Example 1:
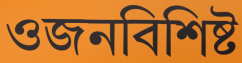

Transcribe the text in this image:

ওজনবিশিষ্ট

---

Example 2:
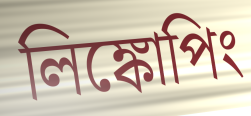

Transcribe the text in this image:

লিঙ্কোপিং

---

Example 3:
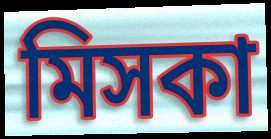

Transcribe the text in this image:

মিসকা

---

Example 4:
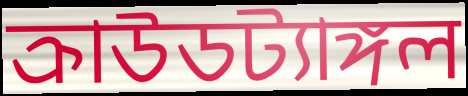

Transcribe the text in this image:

ক্রাউডট্যাঙ্গল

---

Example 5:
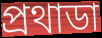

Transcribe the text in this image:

প্রথাডা